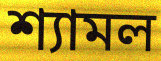
শ্যামল